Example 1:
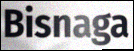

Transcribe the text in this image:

Bisnaga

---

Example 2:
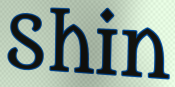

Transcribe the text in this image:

Shin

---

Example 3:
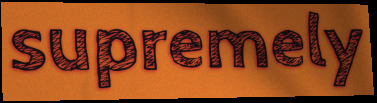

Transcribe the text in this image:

supremely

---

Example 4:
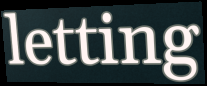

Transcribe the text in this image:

letting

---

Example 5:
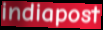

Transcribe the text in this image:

indiapost